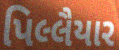
પિલ્લૈયાર